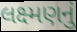
લક્ષ્મણનું